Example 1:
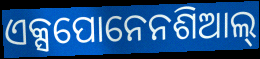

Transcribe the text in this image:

ଏକ୍ସପୋନେନଶିଆଲ୍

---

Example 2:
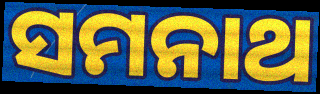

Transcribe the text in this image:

ସମନାଥ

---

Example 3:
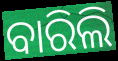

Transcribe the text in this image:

ବାରିଲି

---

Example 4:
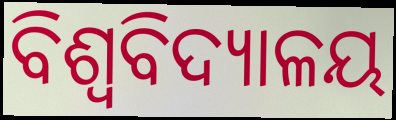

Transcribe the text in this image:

ବିଶ୍ଵବିଦ୍ୟାଳୟ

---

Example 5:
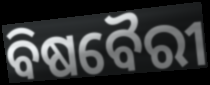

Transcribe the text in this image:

ବିଷବୈରୀ